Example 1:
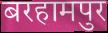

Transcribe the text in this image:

बरहामपुर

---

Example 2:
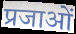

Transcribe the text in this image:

प्रजाओं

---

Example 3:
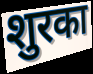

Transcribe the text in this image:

शुरका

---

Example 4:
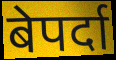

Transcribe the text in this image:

बेपर्दा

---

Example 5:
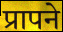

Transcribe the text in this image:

प्रापने